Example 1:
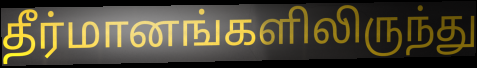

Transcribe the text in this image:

தீர்மானங்களிலிருந்து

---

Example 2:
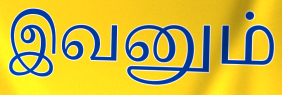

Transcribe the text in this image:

இவனும்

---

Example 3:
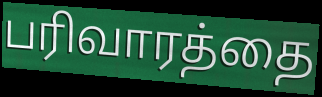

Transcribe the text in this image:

பரிவாரத்தை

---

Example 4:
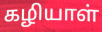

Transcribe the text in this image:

கழியாள்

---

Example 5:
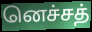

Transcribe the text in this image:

னெச்சத்